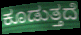
ಕೂಡುತ್ತದೆ